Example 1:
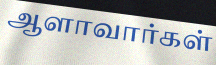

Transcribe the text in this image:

ஆளாவார்கள்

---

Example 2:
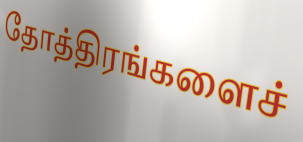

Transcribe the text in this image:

தோத்திரங்களைச்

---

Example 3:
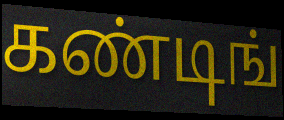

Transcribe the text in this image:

கண்டிங்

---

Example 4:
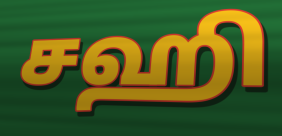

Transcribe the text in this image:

சஹி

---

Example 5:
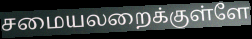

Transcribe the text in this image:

சமையலறைக்குள்ளே